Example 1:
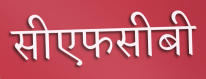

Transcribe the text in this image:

सीएफसीबी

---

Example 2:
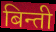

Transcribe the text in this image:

बिन्ती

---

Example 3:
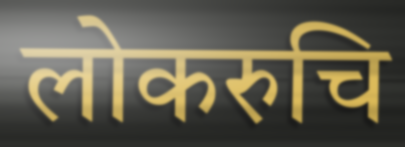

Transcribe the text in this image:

लोकरुचि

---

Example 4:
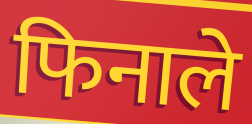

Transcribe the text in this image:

फिनाले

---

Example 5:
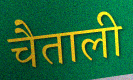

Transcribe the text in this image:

चैताली